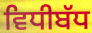
ਵਿਧੀਬੱਧ